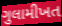
ગુલામીખત